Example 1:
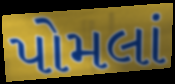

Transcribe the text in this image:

પોમલાં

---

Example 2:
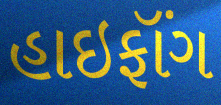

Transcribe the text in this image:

હાઇફૉંગ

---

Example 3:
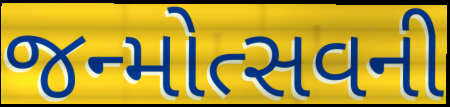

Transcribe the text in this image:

જન્મોત્સવની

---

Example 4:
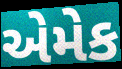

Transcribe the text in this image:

એમેક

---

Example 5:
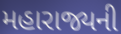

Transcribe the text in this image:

મહારાજ્યની